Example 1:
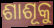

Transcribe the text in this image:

ଶାଶୂକୁ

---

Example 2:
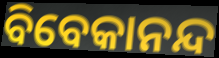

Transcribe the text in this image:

ବିବେକାନନ୍ଦ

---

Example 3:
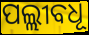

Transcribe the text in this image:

ପଲ୍ଲୀବଧୂ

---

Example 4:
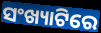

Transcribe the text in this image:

ସଂଖ୍ୟାଟିରେ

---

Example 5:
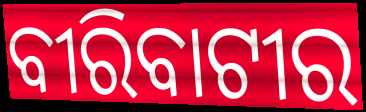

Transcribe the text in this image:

ବୀରିବାଟୀର